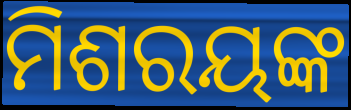
ମିଶରୟଙ୍କ